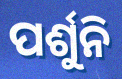
ପର୍ଶୁନି